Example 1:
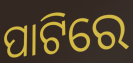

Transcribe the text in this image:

ପାଟିରେ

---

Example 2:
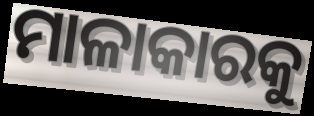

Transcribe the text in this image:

ମାଳାକାରକୁ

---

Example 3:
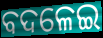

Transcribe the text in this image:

ବଦଳେଇ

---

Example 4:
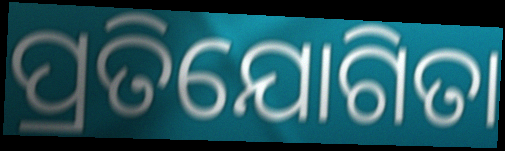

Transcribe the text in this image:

ପ୍ରତିଯୋଗିତା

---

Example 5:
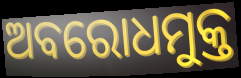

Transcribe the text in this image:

ଅବରୋଧମୁକ୍ତ